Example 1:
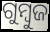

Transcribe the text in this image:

ଗୁମ୍ବୁଜ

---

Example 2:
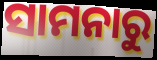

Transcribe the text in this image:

ସାମନାରୁ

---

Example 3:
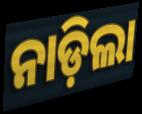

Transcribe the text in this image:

ନାଡ଼ିଲା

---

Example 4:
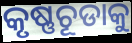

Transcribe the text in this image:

କୃଷ୍ଣଚୂଡାକୁ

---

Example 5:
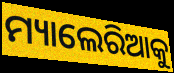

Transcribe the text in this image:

ମ୍ୟାଲେରିଆକୁ